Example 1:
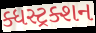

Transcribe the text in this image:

ક્ધસ્ટ્રક્શન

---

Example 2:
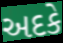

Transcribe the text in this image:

અદકે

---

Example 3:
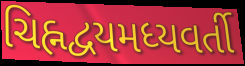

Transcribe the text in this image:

ચિહ્નદ્વયમધ્યવર્તી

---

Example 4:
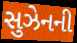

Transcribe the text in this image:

સુઝેનની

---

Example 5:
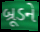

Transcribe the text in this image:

બ્રૂડને